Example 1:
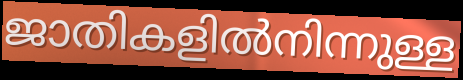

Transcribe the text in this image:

ജാതികളിൽനിന്നുള്ള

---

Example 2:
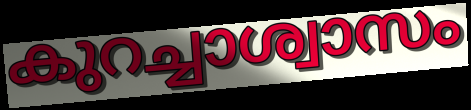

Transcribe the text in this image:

കുറച്ചാശ്വാസം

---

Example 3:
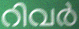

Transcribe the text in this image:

റിവർ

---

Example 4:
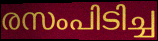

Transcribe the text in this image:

രസംപിടിച്ച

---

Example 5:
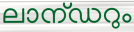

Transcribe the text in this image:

ലാന്ഡറും